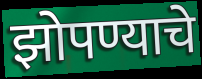
झोपण्याचे